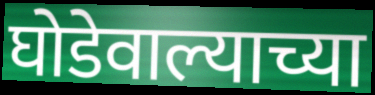
घोडेवाल्याच्या